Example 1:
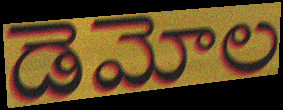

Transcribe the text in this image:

డెమోల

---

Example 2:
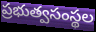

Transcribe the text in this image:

ప్రభుత్వసంస్థల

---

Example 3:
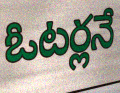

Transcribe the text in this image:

ఓటర్లనే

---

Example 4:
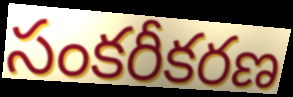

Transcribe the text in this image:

సంకరీకరణ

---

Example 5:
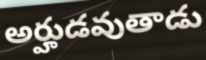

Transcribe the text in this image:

అర్హుడవుతాడు